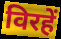
विरहें